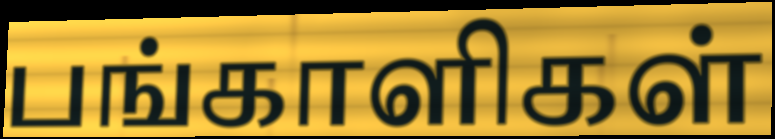
பங்காளிகள்